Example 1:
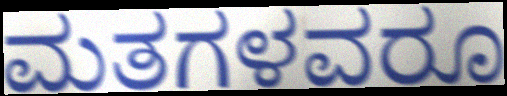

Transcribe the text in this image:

ಮತಗಳವರೂ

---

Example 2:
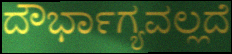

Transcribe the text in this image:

ದೌರ್ಭಾಗ್ಯವಲ್ಲದೆ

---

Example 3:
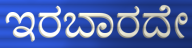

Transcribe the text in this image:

ಇರಬಾರದೇ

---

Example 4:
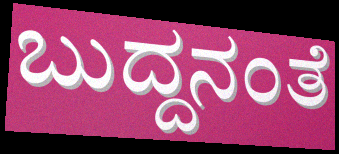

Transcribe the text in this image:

ಬುದ್ದನಂತೆ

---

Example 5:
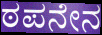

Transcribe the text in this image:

ಠಪನೇನ